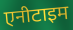
एनीटाइम